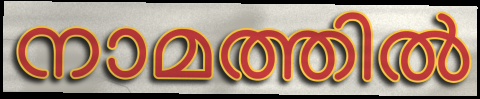
നാമത്തിൽ